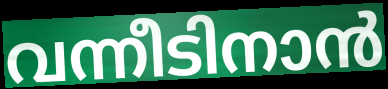
വന്നീടിനാൻ